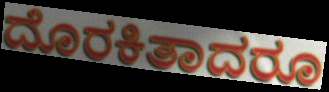
ದೊರಕಿತಾದರೂ